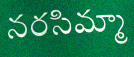
నరసిమ్మా